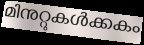
മിനുറ്റുകൾക്കകം